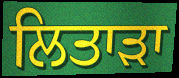
ਲਿਤਾੜਾ